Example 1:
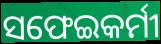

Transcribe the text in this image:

ସଫେଇକର୍ମୀ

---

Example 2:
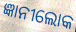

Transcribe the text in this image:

ଜ୍ଞାନୀଲୋକ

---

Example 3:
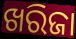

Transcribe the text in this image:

ଖରିଜା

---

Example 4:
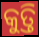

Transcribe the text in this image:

କୁତ୍ତି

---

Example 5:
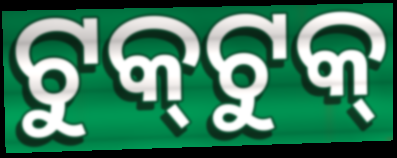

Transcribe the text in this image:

ଟୁକ୍‌ଟୁକ୍